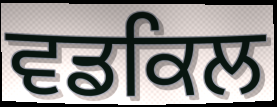
ਵਡਕਿਲ